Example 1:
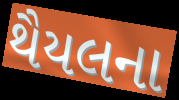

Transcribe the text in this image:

થૈયલના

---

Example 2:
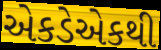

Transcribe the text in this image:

એકડેએકથી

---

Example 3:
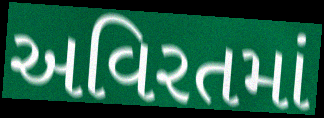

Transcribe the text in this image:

અવિરતમાં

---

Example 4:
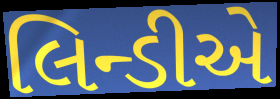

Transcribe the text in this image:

લિન્ડીએ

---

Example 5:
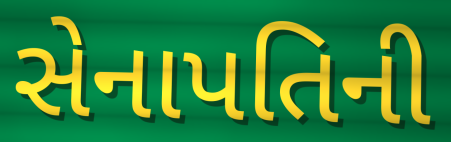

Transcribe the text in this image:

સેનાપતિની